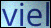
viel